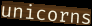
unicorns